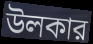
উলকার